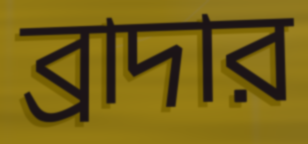
ব্রাদার